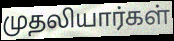
முதலியார்கள்